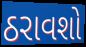
ઠરાવશો